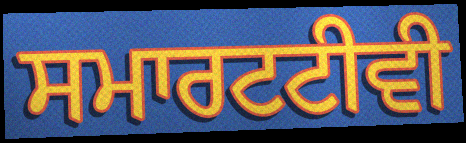
ਸਮਾਰਟਟੀਵੀ